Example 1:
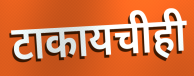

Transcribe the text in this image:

टाकायचीही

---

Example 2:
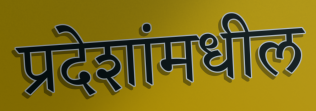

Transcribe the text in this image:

प्रदेशांमधील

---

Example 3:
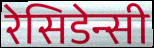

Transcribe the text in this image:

रेसिडेन्सी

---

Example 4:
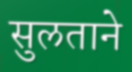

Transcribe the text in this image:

सुलताने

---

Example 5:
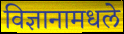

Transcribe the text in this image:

विज्ञानामधले